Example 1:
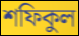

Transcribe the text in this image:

শফিকুল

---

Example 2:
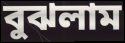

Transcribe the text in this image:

বুঝলাম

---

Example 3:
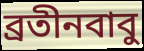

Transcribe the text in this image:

ব্রতীনবাবু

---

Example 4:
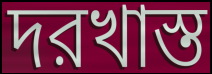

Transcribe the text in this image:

দরখাস্ত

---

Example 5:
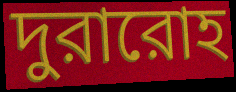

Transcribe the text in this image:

দুরারোহ